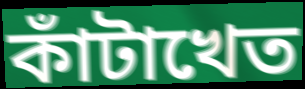
কাঁটাখেত